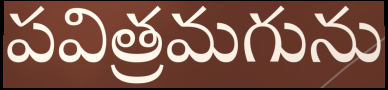
పవిత్రమగును